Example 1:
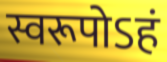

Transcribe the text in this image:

स्वरूपोऽहं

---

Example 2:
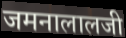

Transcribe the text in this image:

जमनालालजी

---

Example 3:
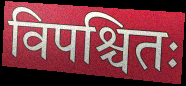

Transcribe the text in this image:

विपश्चितः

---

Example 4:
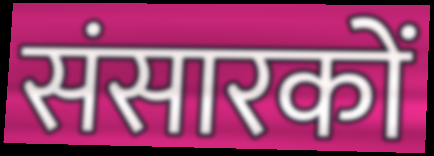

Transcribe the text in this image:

संसारकों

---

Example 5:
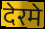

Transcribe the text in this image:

देरमे